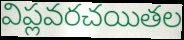
విప్లవరచయితల